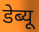
डेब्यू